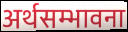
अर्थसम्भावना